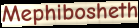
Mephibosheth